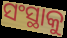
ସଂସ୍ଥାକୁ